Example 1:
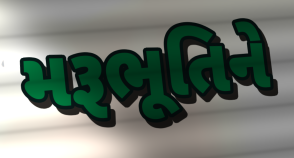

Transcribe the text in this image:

મરૂભૂતિને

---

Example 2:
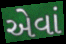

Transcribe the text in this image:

એવાં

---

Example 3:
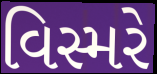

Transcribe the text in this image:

વિસ્મરે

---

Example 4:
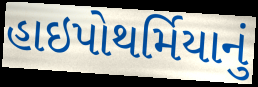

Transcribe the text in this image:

હાઇપોથર્મિયાનું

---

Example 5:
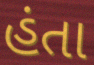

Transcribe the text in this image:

હંતા